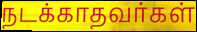
நடக்காதவர்கள்